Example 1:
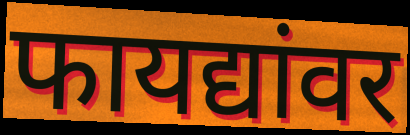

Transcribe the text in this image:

फायद्यांवर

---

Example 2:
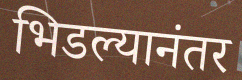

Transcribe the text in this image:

भिडल्यानंतर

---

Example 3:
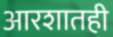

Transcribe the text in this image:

आरशातही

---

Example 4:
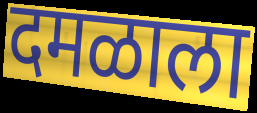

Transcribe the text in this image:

दमळाला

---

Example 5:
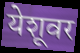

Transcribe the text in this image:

येशूवर